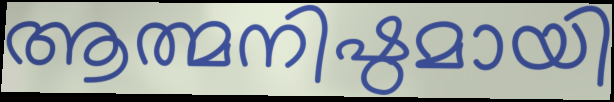
ആത്മനിഷ്ഠമായി